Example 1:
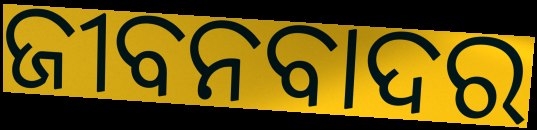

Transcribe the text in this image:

ଜୀବନବାଦର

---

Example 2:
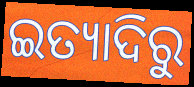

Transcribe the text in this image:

ଇତ୍ୟାଦିରୁ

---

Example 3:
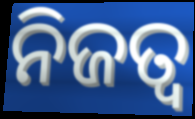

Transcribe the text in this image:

ନିଜତ୍ବ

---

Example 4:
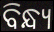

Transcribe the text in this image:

ବିନ୍ଧ୍ୟ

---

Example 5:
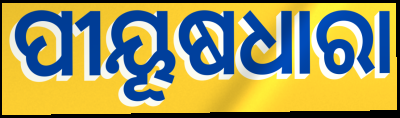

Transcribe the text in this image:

ପୀୟୂଷଧାରା